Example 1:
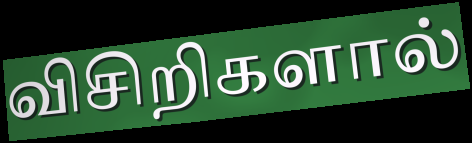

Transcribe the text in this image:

விசிறிகளால்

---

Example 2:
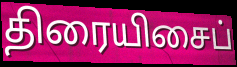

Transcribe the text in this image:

திரையிசைப்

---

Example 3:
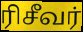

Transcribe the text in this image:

ரிசீவர்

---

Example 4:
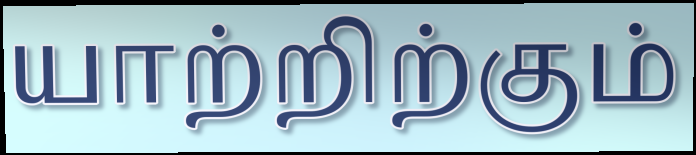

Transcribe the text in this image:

யாற்றிற்கும்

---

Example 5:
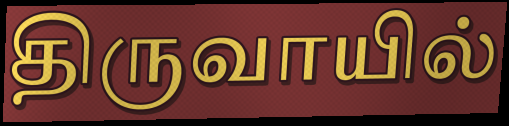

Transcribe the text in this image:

திருவாயில்